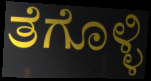
ತೆಗೊಳ್ಳಿ